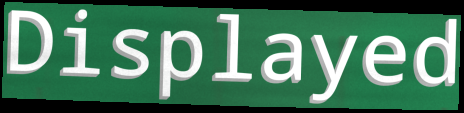
Displayed